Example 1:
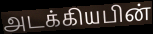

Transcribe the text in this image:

அடக்கியபின்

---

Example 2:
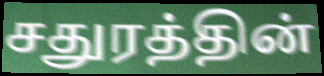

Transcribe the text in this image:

சதுரத்தின்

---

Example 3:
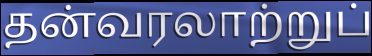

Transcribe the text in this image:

தன்வரலாற்றுப்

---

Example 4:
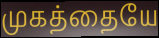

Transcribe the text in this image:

முகத்தையே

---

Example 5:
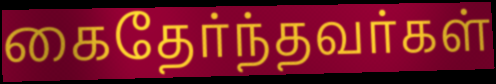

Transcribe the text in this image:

கைதேர்ந்தவர்கள்